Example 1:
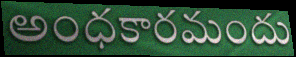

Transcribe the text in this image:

అంధకారమందు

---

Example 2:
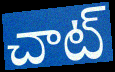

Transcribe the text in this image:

చాట్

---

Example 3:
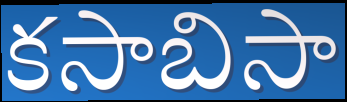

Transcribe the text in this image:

కసాబిసా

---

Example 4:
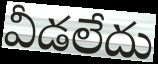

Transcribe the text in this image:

వీడలేదు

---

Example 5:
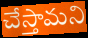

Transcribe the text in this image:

చేస్తామని